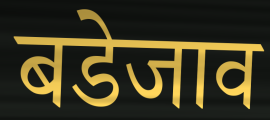
बडेजाव